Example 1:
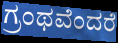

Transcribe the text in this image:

ಗ್ರಂಥವೆಂದರೆ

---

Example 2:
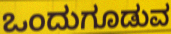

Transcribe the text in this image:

ಒಂದುಗೂಡುವ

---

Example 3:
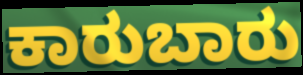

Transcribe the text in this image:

ಕಾರುಬಾರು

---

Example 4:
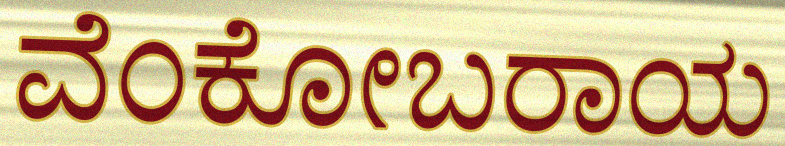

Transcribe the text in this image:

ವೆಂಕೋಬರಾಯ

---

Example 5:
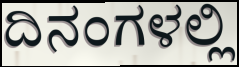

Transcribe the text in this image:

ದಿನಂಗಳಲ್ಲಿ